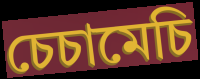
চেচামেচি